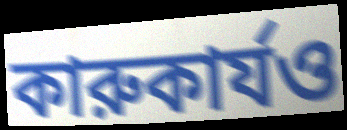
কারুকার্যও